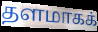
தளமாகக்